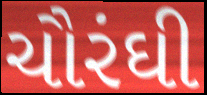
ચૌરંઘી